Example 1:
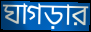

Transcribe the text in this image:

ঘাগড়ার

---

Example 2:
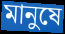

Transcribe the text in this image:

মানুষে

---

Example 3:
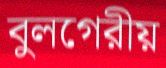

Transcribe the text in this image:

বুলগেরীয়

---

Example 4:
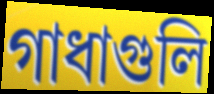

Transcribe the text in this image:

গাধাগুলি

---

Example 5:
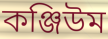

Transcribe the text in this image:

কঞ্জিউম